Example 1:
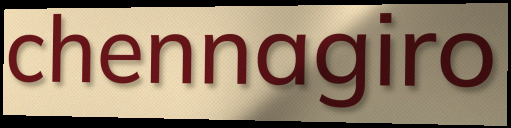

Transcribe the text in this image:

chennagiro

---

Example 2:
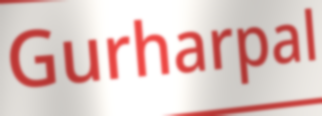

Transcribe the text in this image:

Gurharpal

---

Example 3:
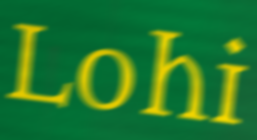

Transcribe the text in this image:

Lohi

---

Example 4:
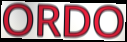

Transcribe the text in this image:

ORDO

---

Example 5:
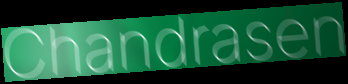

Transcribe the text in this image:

Chandrasen